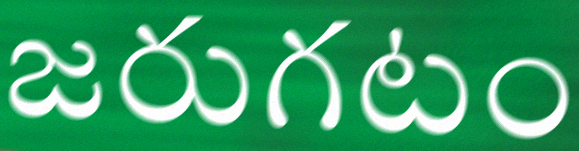
జరుగటం